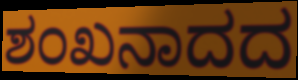
ಶಂಖನಾದದ